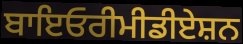
ਬਾਇਓਰੀਮੀਡੀਏਸ਼ਨ